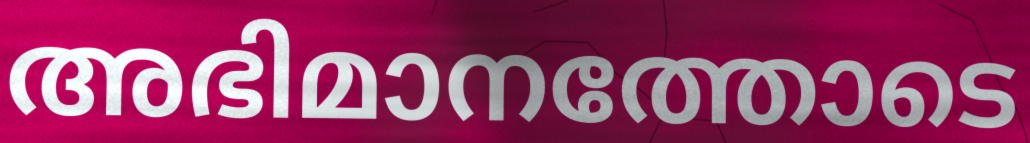
അഭിമാനത്തോടെ